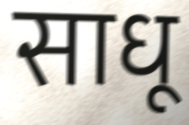
साधू